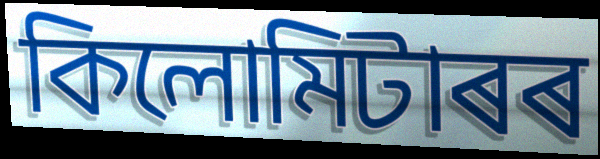
কিলোমিটাৰৰ